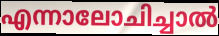
എന്നാലോചിച്ചാൽ